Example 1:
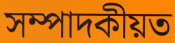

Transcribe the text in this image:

সম্পাদকীয়ত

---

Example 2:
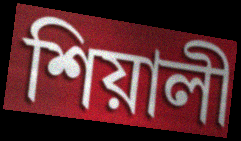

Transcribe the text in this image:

শিয়ালী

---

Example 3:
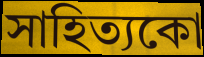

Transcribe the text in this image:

সাহিত্যকো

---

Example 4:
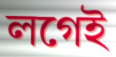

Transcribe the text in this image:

লগেই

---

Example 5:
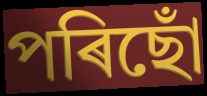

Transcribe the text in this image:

পৰিছোঁ